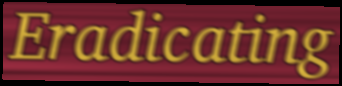
Eradicating